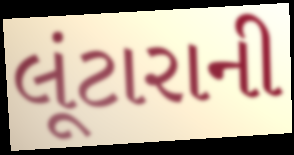
લૂંટારાની